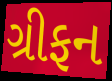
ગ્રીફન